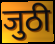
जुठी